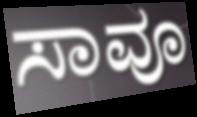
ಸಾವೂ